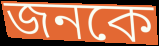
জনকে